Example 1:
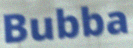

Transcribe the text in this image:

Bubba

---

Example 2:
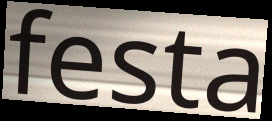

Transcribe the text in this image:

festa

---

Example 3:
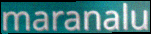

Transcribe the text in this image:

maranalu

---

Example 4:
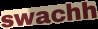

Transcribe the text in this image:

swachh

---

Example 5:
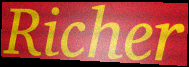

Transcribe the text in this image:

Richer